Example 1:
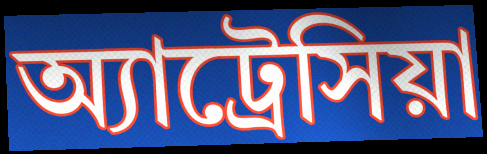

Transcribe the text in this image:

অ্যাট্রেসিয়া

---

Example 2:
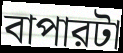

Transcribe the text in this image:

বাপারটা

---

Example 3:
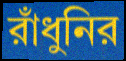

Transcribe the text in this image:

রাঁধুনির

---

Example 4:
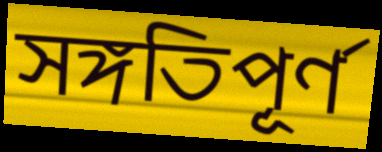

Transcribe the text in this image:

সঙ্গতিপূর্ণ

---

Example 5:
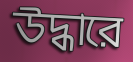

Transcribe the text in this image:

উদ্ধারে